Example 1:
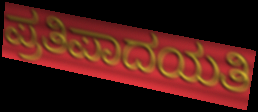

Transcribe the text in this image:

ಪ್ರತಿಪಾದಯತಿ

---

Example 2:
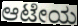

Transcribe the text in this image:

ಆಟೇಯ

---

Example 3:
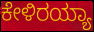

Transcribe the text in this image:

ಕೇಳಿರಯ್ಯಾ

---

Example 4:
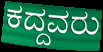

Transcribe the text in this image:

ಕದ್ದವರು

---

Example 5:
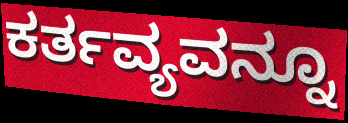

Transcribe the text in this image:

ಕರ್ತವ್ಯವನ್ನೂ